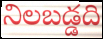
నిలబడ్డది